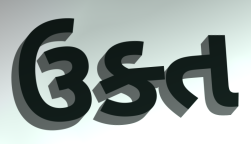
ઉક્ત